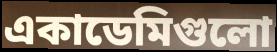
একাডেমিগুলো